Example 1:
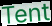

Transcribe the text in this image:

Tent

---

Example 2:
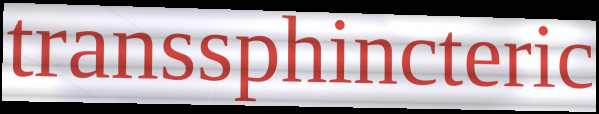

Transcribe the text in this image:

transsphincteric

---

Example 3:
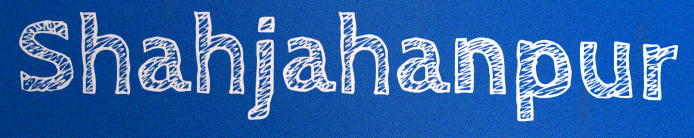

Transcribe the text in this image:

Shahjahanpur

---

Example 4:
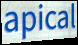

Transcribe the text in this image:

apical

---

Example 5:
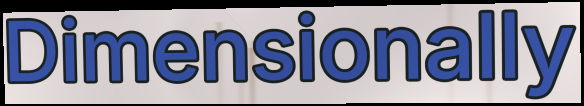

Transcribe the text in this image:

Dimensionally